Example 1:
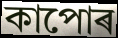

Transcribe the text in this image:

কাপোৰ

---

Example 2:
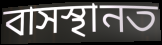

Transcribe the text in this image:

বাসস্থানত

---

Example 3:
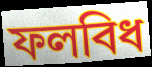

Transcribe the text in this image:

ফলবিধ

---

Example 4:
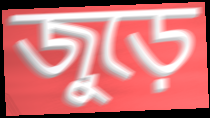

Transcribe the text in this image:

জুড়ে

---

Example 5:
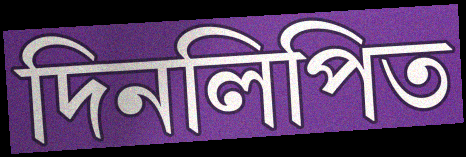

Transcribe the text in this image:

দিনলিপিত